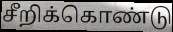
சீறிக்கொண்டு